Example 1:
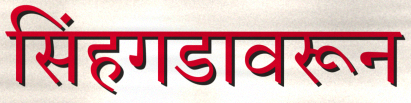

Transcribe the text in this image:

सिंहगडावरून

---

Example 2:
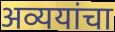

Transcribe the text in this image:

अव्ययांचा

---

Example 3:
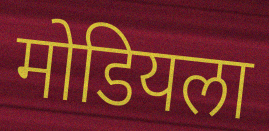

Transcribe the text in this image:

मोडियला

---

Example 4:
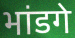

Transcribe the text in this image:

भांडगे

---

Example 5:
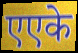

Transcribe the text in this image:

एएके